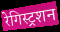
रेगिस्ट्रशन